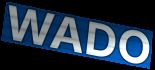
WADO